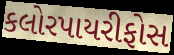
કલોરપાયરીફોસ